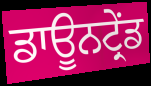
ਡਾਊਨਟ੍ਰੇਂਡ